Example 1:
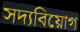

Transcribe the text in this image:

সদ্যবিয়োগ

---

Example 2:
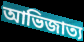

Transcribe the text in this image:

আভিজাত্য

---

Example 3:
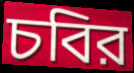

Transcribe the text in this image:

চবির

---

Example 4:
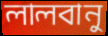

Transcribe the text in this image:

লালবানু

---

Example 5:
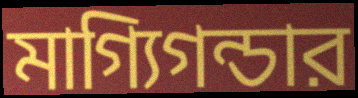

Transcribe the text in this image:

মাগ্যিগন্ডার